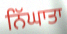
ਨਿੱਘਾਤਾ